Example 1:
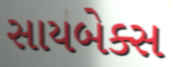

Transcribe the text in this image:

સાયબેક્સ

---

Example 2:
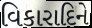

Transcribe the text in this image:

વિકારાદિને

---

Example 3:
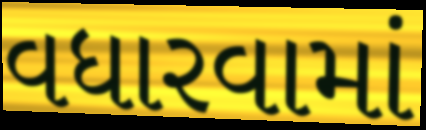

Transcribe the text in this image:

વધારવામાં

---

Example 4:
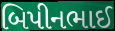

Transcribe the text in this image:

બિપીનભાઈ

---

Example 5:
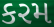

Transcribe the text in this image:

કરમ